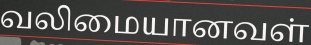
வலிமையானவள்